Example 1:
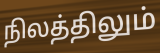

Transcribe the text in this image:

நிலத்திலும்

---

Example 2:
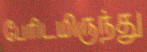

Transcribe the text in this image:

பேரிடமிருந்து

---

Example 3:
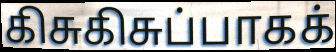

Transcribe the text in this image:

கிசுகிசுப்பாகக்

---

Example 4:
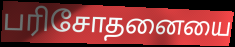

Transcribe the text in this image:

பரிசோதனையை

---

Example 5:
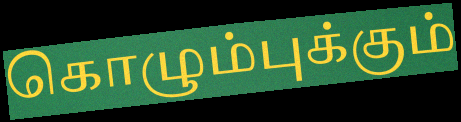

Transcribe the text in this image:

கொழும்புக்கும்